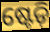
ଷ୍ଟେଡ଼ି